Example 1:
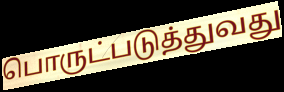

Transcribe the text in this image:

பொருட்படுத்துவது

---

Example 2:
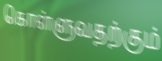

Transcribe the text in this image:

கொள்ளுவதற்கும்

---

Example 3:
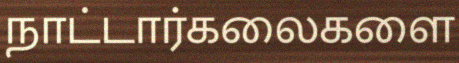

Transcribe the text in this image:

நாட்டார்கலைகளை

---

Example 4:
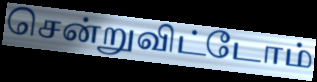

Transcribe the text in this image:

சென்றுவிட்டோம்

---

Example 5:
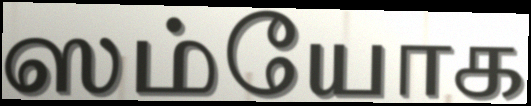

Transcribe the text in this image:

ஸம்யோக